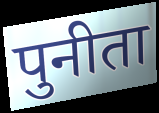
पुनीता